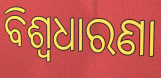
ବିଶ୍ୱଧାରଣା